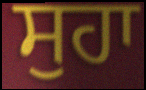
ਸੁਹਾ